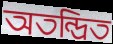
অতন্দ্রিত